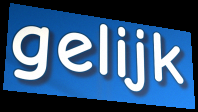
gelijk